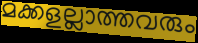
മക്കളല്ലാത്തവരും